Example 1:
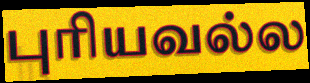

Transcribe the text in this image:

புரியவல்ல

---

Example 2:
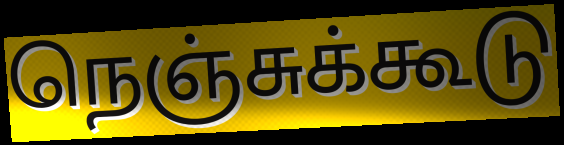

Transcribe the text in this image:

நெஞ்சுக்கூடு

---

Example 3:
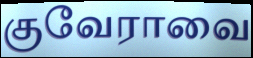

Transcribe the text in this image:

குவேராவை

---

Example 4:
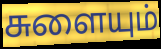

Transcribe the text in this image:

சுளையும்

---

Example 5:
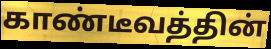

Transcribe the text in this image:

காண்டீவத்தின்